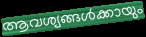
ആവശ്യങ്ങൾക്കായും